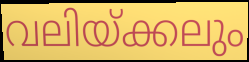
വലിയ്ക്കലും